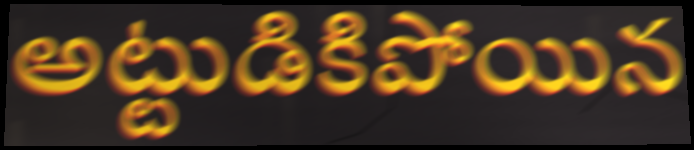
అట్టుడికిపోయిన